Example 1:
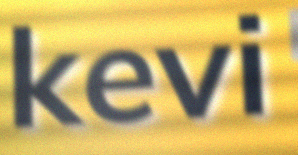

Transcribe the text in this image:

kevi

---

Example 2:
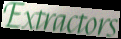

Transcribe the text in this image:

Extractors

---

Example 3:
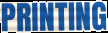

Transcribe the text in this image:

PRINTING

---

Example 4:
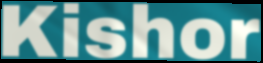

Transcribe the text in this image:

Kishor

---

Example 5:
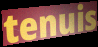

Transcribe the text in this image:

tenuis